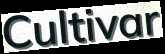
Cultivar